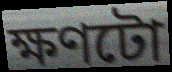
ক্ষণটো